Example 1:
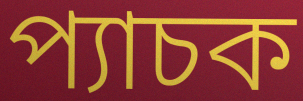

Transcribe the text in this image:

প্যাচক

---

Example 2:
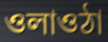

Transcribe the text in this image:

ওলাওঠা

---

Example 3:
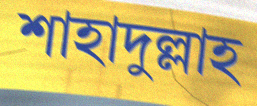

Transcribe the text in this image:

শাহাদুল্লাহ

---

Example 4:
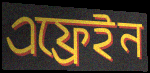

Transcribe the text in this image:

এফ্রেইন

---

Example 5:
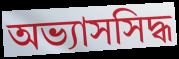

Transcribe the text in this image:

অভ্যাসসিদ্ধ